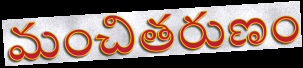
మంచితరుణం